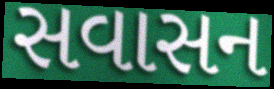
સવાસન